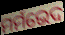
ମର୍ମଭେଦ